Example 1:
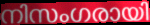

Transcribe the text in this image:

നിസംഗരായി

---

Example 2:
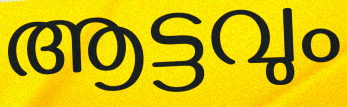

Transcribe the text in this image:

ആട്ടവും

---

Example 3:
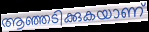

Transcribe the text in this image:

ആഞ്ഞടിക്കുകയാണ്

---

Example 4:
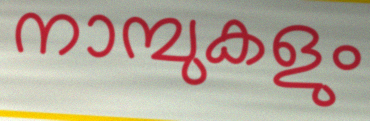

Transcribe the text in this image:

നാമ്പുകളും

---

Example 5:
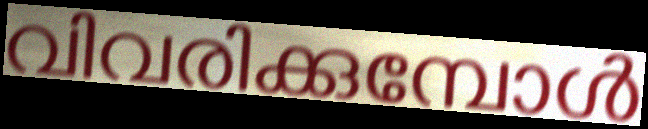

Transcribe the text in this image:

വിവരിക്കുമ്പോൾ